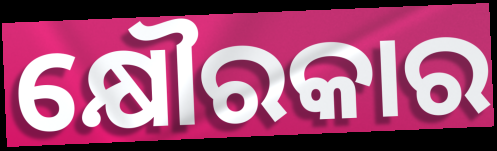
କ୍ଷୌରକାର